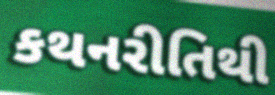
કથનરીતિથી